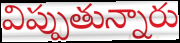
విప్పుతున్నారు